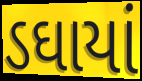
ડઘાયાં